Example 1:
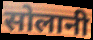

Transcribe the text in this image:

सोलानी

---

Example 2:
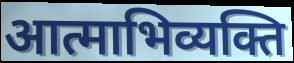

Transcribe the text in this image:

आत्माभिव्यक्ति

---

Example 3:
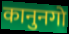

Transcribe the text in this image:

कानुनगो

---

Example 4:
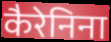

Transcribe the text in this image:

कैरेनिना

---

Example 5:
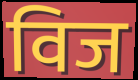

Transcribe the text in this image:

विज